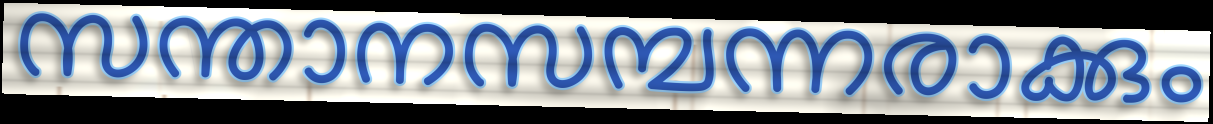
സന്താനസമ്പന്നരാക്കും